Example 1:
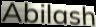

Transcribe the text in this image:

Abilash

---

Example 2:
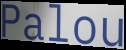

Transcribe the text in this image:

Palou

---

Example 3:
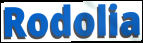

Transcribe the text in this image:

Rodolia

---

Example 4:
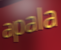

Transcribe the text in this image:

apala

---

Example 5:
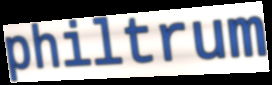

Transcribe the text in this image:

philtrum